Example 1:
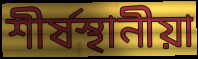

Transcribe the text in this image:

শীর্ষস্থানীয়া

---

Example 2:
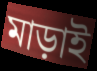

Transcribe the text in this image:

মাড়াই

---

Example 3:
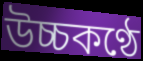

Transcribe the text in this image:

উচ্চকণ্ঠে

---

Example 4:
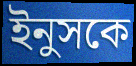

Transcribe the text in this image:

ইনুসকে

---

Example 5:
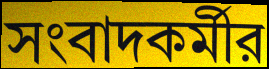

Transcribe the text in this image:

সংবাদকর্মীর